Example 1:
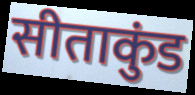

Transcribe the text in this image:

सीताकुंड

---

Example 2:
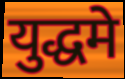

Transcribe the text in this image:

युद्धमे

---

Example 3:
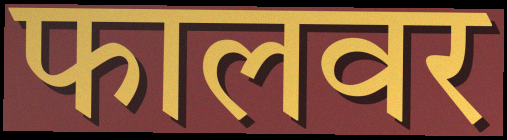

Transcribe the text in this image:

फालवर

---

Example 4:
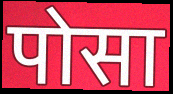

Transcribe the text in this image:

पोसा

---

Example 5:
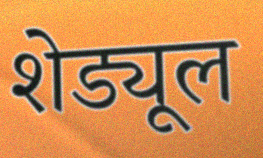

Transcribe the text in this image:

शेड्यूल